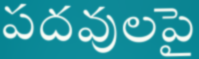
పదవులపై